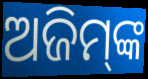
ଅଜିମ୍‌ଙ୍କ